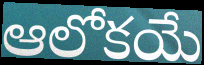
ఆలోకయే